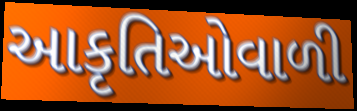
આકૃતિઓવાળી